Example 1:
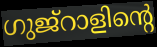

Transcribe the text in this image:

ഗുജ്റാളിന്റെ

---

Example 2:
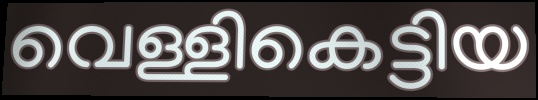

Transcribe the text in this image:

വെള്ളികെട്ടിയ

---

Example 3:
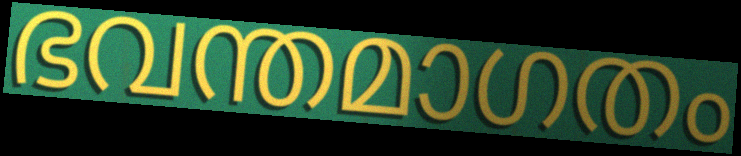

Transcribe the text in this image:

ഭവന്തമാഗതം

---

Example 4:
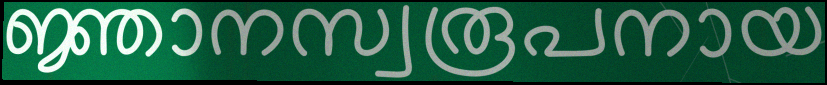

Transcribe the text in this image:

ജ്ഞാനസ്വരൂപനായ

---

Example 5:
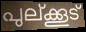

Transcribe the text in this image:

പുല്ക്കൂട്